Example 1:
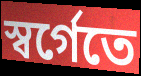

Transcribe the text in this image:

স্বর্গেতে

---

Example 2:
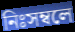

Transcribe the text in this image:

নিঃসম্বলে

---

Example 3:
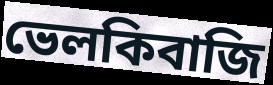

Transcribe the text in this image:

ভেলকিবাজি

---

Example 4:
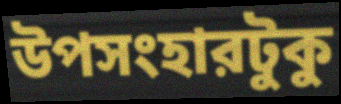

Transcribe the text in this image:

উপসংহারটুকু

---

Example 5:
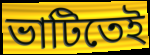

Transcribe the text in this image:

ভাটিতেই